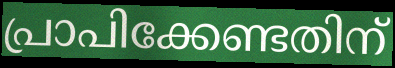
പ്രാപിക്കേണ്ടതിന്